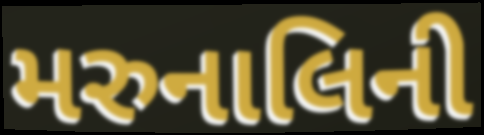
મરુનાલિની